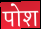
पोश